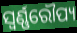
ସ୍ୱର୍ଣ୍ଣରୌପ୍ୟ